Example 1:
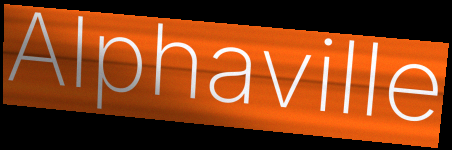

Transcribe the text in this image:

Alphaville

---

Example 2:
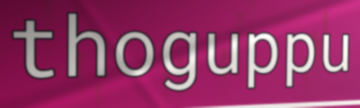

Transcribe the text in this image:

thoguppu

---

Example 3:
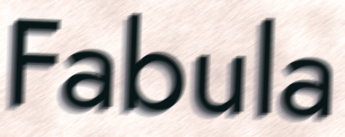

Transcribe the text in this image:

Fabula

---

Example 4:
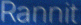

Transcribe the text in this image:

Rannit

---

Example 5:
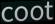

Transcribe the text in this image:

coot